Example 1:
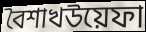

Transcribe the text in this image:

বৈশাখউয়েফা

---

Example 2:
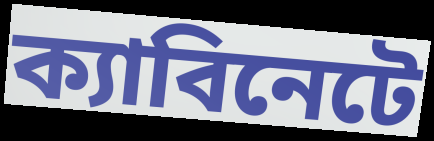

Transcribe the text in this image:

ক্যাবিনেটে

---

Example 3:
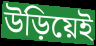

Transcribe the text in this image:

উড়িয়েই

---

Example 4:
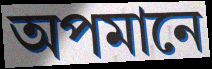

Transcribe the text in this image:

অপমানে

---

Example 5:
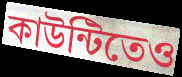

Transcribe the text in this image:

কাউন্টিতেও